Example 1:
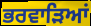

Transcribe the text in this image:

ਭਰਵਾੜਿਆਂ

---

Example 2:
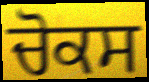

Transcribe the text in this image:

ਚੋਕਸ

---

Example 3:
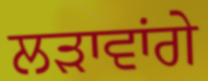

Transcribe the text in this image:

ਲੜਾਵਾਂਗੇ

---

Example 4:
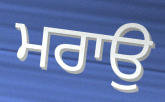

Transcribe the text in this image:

ਮਰਾਉ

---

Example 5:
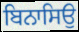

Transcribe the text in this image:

ਬਿਨਾਸਿਉ